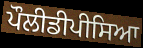
ਪੌਲੀਡੀਪੀਸਿਆ